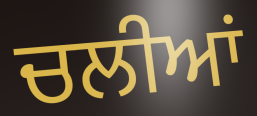
ਚਲੀਆਂ